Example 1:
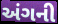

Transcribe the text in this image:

અંગની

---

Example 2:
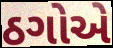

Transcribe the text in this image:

ઠગોએ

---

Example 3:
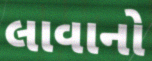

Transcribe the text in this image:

લાવાનો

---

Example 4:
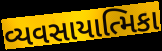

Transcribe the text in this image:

વ્યવસાયાત્મિકા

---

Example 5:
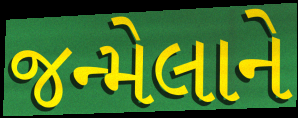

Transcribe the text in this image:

જન્મેલાને